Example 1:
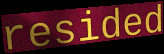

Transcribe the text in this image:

resided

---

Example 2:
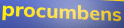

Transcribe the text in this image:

procumbens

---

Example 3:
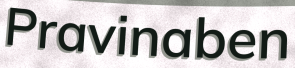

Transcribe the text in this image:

Pravinaben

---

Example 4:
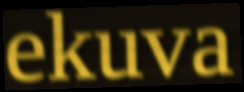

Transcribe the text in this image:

ekuva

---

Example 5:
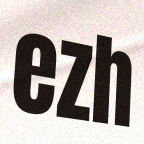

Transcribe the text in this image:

ezh